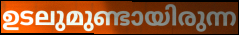
ഉടലുമുണ്ടായിരുന്ന